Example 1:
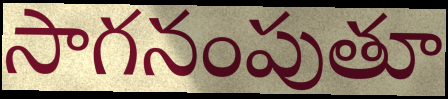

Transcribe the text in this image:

సాగనంపుతూ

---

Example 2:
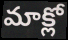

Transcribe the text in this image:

మాక్లో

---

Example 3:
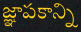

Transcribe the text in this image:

జ్ఞాపకాన్ని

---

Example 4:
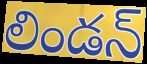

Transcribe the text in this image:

లిండన్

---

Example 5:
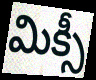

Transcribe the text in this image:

మిక్సీ